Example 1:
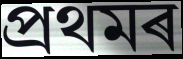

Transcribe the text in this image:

প্ৰথমৰ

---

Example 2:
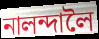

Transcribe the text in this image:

নালন্দালৈ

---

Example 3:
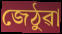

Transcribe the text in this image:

জেঠুৱা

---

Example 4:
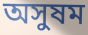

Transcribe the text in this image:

অসুষম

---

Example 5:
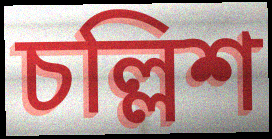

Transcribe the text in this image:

চল্লিশ